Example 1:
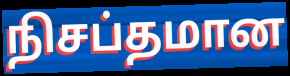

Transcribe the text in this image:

நிசப்தமான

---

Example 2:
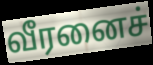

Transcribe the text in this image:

வீரனைச்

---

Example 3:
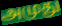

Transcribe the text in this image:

அமுது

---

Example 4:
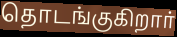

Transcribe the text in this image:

தொடங்குகிறார்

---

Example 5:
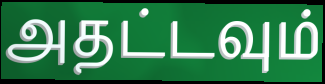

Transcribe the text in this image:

அதட்டவும்